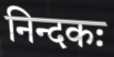
निन्दकः